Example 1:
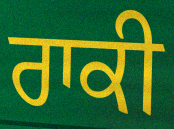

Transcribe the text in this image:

ਰਾਕੀ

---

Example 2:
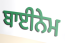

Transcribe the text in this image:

ਬਾਈਨੇਮ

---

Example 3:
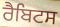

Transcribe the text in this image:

ਰੈਬਿਟਸ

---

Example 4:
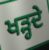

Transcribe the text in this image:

ਖੜ੍ਹਦੇ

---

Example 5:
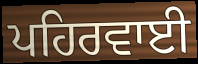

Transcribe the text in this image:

ਪਹਿਰਵਾਈ